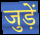
जुड़ें